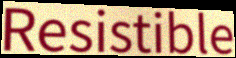
Resistible